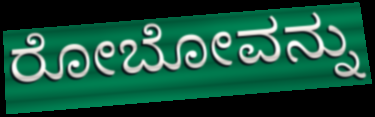
ರೋಬೋವನ್ನು